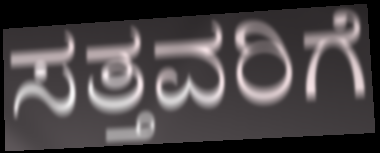
ಸತ್ತವರಿಗೆ